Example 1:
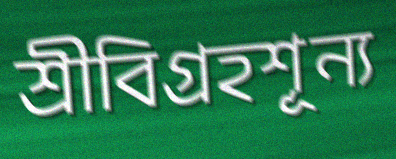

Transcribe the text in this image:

শ্রীবিগ্রহশূন্য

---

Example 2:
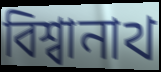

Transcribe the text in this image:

বিশ্বানাথ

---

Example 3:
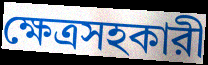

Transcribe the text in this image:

ক্ষেত্রসহকারী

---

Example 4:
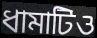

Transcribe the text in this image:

ধামাটিও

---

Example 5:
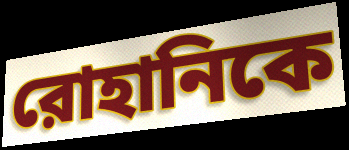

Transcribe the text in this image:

রোহানিকে